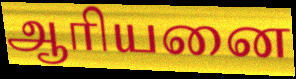
ஆரியனை